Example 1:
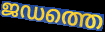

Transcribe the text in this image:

ജഡത്തെ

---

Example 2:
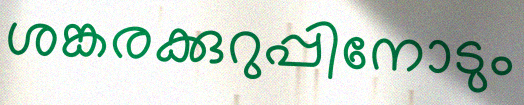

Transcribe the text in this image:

ശങ്കരക്കുറുപ്പിനോടും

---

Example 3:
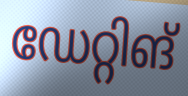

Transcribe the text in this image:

ഡേറ്റിങ്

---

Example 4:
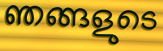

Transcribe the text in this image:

ഞങ്ങളുടെ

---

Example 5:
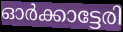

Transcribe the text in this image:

ഓർക്കാട്ടേരി